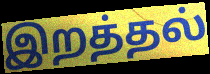
இறத்தல்